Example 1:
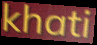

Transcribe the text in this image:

khati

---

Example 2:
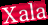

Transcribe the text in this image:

Xala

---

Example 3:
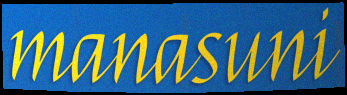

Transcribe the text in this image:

manasuni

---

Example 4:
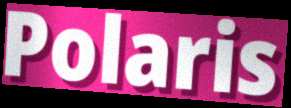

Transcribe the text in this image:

Polaris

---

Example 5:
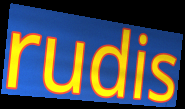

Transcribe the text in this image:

rudis